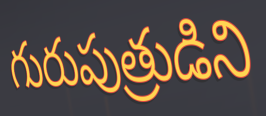
గురుపుత్రుడిని